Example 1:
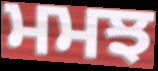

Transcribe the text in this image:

ਮਮਝ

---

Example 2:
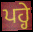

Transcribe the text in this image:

ਪਹ੍ਹੇ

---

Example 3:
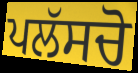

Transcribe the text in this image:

ਪਲੱਸਚੋ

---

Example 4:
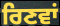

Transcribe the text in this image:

ਰਿਣਵਾਂ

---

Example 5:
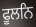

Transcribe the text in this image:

ਫੂਲਨਿ